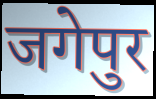
जगेपुर